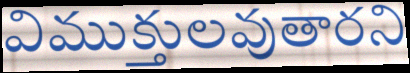
విముక్తులవుతారని